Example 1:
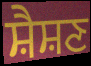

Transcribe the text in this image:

ਸ਼ੈਸ਼ਣ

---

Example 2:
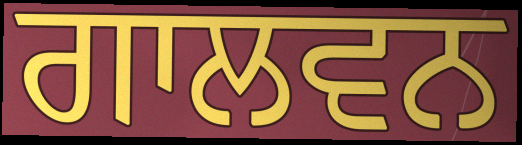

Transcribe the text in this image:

ਗਾਲਵਨ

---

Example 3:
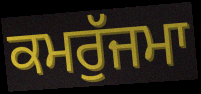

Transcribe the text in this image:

ਕਮਰੁੱਜਮਾ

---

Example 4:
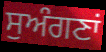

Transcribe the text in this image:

ਸੁਅੰਗਣਾਂ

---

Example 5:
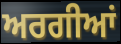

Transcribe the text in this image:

ਅਰਗੀਆਂ